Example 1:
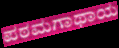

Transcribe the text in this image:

ಪಠಮಗಾಥಾಯ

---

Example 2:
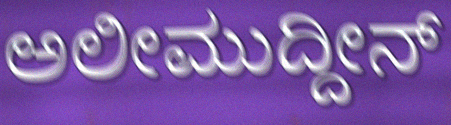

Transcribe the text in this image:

ಅಲೀಮುದ್ದೀನ್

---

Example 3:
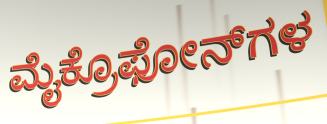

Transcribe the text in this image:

ಮೈಕ್ರೊಫೋನ್‌ಗಳ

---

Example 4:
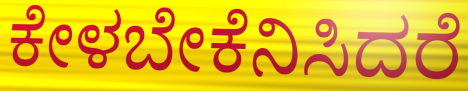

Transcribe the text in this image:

ಕೇಳಬೇಕೆನಿಸಿದರೆ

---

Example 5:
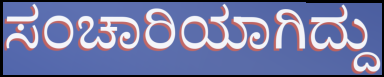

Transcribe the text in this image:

ಸಂಚಾರಿಯಾಗಿದ್ದು